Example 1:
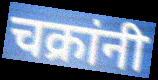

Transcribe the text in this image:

चक्रांनी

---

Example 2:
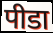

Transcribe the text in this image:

पीडा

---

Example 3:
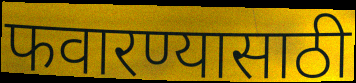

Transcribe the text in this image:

फवारण्यासाठी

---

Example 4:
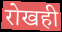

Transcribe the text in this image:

रोखही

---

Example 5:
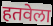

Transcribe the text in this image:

हतवेला